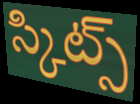
స్కిట్స్